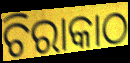
ଚିରାକାଠ